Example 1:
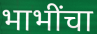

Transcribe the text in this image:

भाभींचा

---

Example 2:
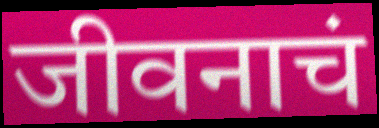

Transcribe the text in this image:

जीवनाचं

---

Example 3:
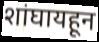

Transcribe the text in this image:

शांघायहून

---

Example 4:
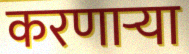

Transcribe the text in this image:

करणार्‍या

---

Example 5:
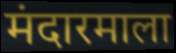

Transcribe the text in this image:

मंदारमाला